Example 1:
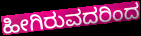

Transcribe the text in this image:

ಹೀಗಿರುವದರಿಂದ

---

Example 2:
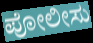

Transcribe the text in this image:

ಪೋಲೀಸು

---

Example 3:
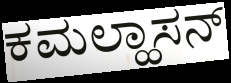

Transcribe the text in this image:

ಕಮಲ್ಹಾಸನ್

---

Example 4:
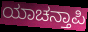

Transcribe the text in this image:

ಯಾಚನ್ತಾಪಿ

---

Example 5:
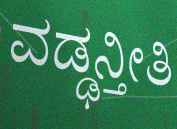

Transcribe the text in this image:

ವಡ್ಢನ್ತೀತಿ